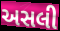
અસલી